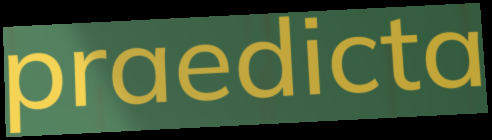
praedicta